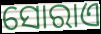
ସୋରାଏ